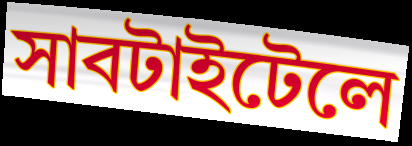
সাবটাইটেলে